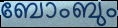
ബോംബും